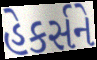
હેકર્સને